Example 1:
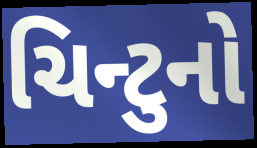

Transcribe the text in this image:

ચિન્ટુનો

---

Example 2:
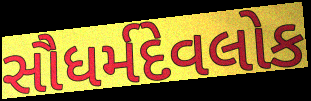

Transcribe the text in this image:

સૌધર્મદેવલોક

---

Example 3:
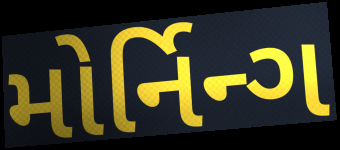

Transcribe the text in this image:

મોર્નિન્ગ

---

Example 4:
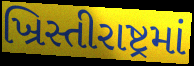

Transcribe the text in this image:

ખ્રિસ્તીરાષ્ટ્રમાં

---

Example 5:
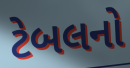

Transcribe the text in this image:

ટેબલનો